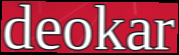
deokar